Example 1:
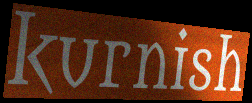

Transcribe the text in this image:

kurnish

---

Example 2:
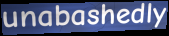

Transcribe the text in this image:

unabashedly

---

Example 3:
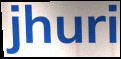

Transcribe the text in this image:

jhuri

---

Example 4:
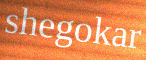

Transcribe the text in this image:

shegokar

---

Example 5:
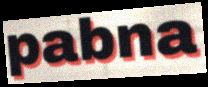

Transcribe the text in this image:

pabna